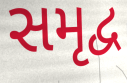
સમૃદ્વ